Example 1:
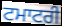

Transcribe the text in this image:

ਟਮਾਟਰੀ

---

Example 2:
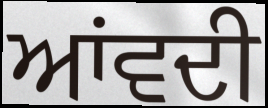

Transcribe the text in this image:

ਆਂਵਦੀ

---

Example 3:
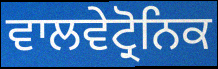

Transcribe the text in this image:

ਵਾਲਵੇਟ੍ਰੋਨਿਕ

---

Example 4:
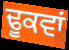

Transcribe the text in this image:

ਢੂਕਵਾਂ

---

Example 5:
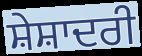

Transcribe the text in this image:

ਸ਼ੇਸ਼ਾਦਰੀ